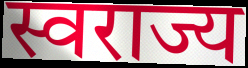
स्वराज्य